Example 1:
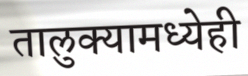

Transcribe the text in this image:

तालुक्यामध्येही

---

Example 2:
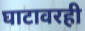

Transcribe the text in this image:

घाटावरही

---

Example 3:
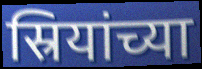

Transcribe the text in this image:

स्रियांच्या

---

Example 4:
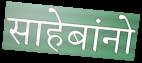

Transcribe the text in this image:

साहेबांनो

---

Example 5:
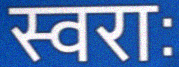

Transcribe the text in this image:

स्वराः